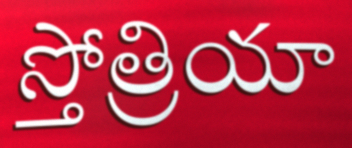
స్తోత్రియా